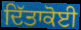
ਦਿੱਤਾਕੋਈ